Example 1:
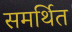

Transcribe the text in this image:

समर्थित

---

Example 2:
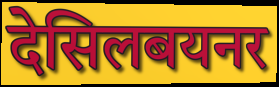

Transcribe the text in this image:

देसिलबयनर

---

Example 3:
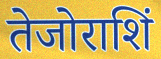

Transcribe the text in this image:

तेजोराशिं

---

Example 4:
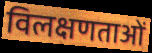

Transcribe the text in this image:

विलक्षणताओं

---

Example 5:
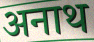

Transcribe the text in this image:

अनाथ